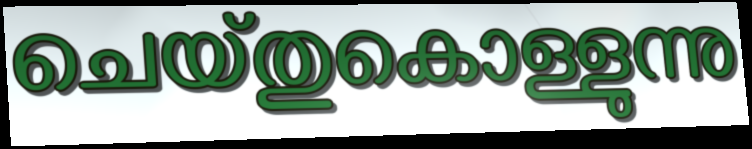
ചെയ്തുകൊള്ളുന്നു